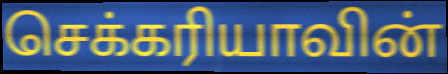
செக்கரியாவின்